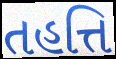
તહત્તિ